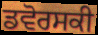
ਡਵੋਰਸਕੀ